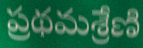
ప్రథమశ్రేణి